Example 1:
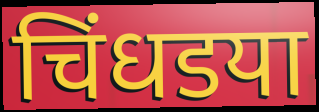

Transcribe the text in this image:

चिंधडया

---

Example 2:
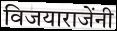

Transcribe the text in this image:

विजयाराजेंनी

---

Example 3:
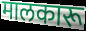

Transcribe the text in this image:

मालकारू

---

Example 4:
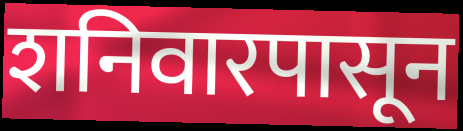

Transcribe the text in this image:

शनिवारपासून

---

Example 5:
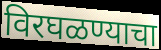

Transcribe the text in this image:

विरघळण्याचा